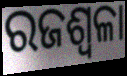
ରଜଶ୍ୱଳା